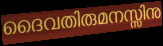
ദൈവതിരുമനസ്സിനു